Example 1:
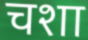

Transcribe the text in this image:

चशा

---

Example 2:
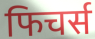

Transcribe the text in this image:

फिचर्स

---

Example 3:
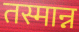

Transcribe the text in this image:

तस्मान्न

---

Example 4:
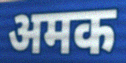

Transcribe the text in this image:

अमक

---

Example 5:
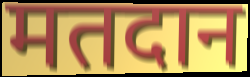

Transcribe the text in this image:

मतदान